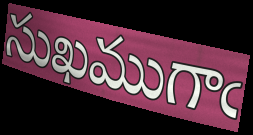
సుఖముగాఁ